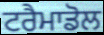
ਟਰੈਮਾਡੋਲ